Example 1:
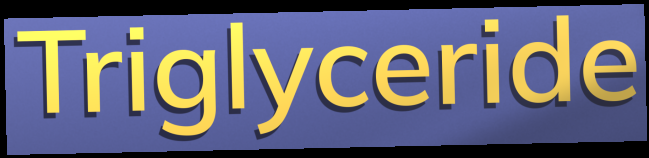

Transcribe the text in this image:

Triglyceride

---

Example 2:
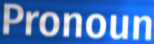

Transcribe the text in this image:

Pronoun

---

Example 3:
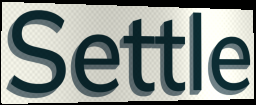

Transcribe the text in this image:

Settle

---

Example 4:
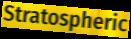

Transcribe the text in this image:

Stratospheric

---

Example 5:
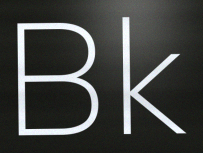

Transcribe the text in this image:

Bk